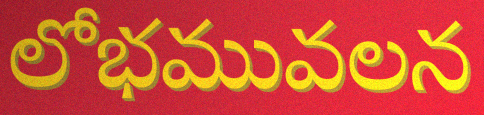
లోభమువలన